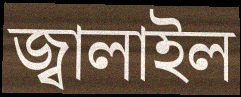
জ্বালাইল